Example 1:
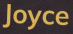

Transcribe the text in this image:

Joyce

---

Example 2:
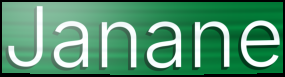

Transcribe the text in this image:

Janane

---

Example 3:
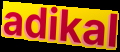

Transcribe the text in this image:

adikal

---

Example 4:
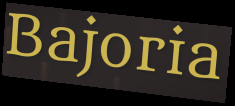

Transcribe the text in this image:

Bajoria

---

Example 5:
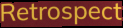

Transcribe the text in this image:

Retrospect